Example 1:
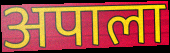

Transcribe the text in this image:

अपाला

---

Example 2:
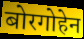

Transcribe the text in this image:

बोरगोहेन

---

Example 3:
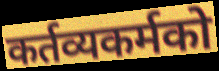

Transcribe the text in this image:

कर्तव्यकर्मको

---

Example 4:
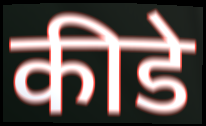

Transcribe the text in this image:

कीडे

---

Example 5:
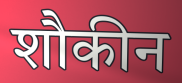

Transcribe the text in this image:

शौकीन